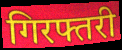
गिरफ्तरी